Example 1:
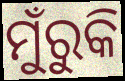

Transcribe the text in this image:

ମୁଁରୁକି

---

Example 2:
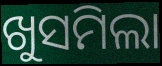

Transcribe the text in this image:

ଖୁସମିଲା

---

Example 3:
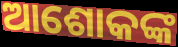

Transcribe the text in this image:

ଆଶୋକଙ୍କ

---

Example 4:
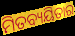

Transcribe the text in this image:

ମିତବ୍ୟୟିତାର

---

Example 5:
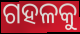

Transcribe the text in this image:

ଗହଳକୁ